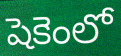
షెకెంలో